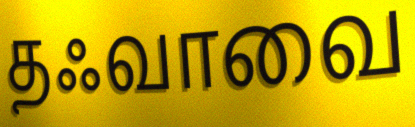
தஃவாவை